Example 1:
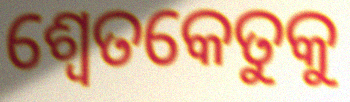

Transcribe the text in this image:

ଶ୍ୱେତକେତୁକୁ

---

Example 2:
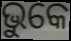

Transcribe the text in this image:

ଭୁକେ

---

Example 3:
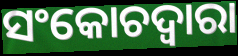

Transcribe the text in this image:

ସଂକୋଚଦ୍ୱାରା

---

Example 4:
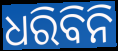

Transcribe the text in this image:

ଧରିବିନି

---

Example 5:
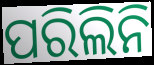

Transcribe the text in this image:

ପରିଲିନି